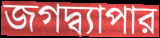
জগদ্ব্যাপার